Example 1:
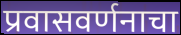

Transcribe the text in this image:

प्रवासवर्णनाचा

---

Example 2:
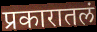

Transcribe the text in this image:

प्रकारातलं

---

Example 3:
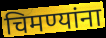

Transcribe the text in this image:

चिमण्यांना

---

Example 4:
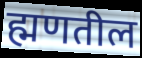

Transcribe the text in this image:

ह्मणतील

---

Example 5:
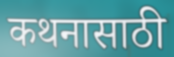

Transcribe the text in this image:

कथनासाठी